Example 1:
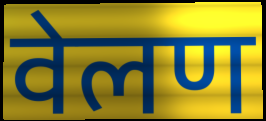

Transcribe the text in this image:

वेलण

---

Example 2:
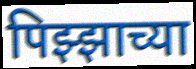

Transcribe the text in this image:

पिझ्झाच्या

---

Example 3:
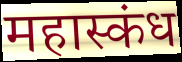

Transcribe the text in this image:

महास्कंध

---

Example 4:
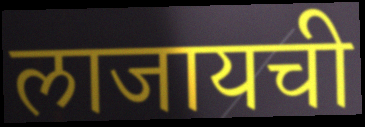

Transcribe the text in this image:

लाजायची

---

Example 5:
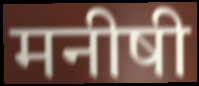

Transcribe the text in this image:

मनीषी